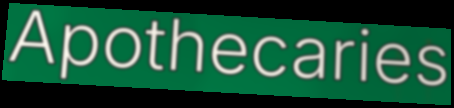
Apothecaries